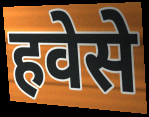
हवेसे